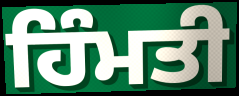
ਹਿੰਮਤੀ